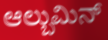
ಆಲ್ಬುಮಿನ್